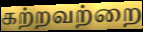
கற்றவற்றை